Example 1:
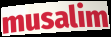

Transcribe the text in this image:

musalim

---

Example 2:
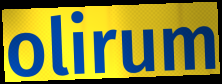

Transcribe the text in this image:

olirum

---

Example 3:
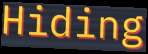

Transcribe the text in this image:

Hiding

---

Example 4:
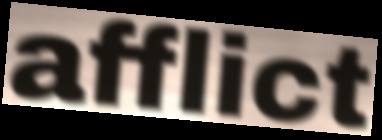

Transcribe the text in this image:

afflict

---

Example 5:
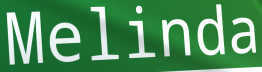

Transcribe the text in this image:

Melinda